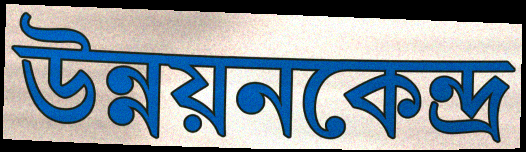
উন্নয়নকেন্দ্র